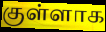
குள்ளாக